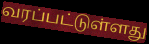
வரப்பட்டுள்ளது